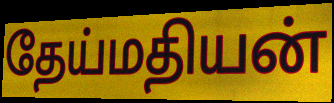
தேய்மதியன்